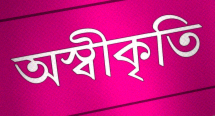
অস্বীকৃতি